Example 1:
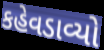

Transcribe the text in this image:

કહેવડાવ્યો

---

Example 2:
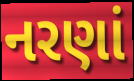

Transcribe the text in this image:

નરણાં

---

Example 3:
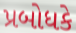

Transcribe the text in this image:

પ્રબોધકે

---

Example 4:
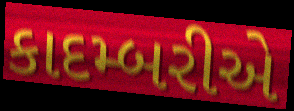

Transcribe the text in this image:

કાદમ્બરીએ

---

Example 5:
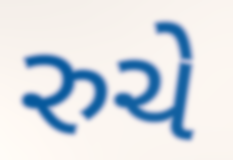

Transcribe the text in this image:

રુચે